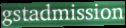
gstadmission